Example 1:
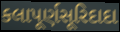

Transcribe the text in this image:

કલાપૂર્ણસૂરિદાદા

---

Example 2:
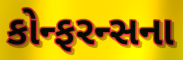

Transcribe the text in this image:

કોન્ફરન્સના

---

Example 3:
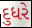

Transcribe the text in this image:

દુધરે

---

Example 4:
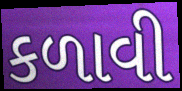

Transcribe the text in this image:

કળાવી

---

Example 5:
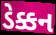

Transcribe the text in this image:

ડેક્કન